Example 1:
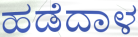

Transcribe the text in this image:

ಹಡೆದಾಳ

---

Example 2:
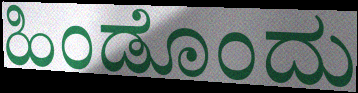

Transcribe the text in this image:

ಹಿಂಡೊಂದು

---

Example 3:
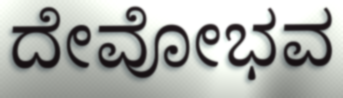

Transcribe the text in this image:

ದೇವೋಭವ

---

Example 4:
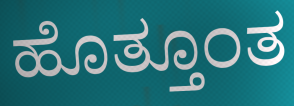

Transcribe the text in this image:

ಹೊತ್ತೂಂತ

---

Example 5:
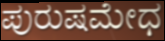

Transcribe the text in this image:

ಪುರುಷಮೇಧ